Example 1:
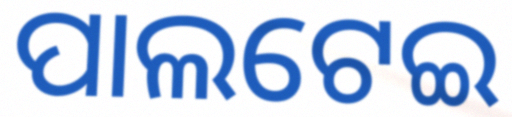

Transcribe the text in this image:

ପାଲଟେଇ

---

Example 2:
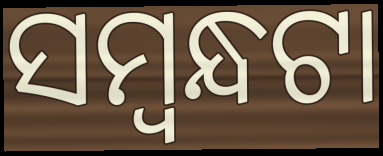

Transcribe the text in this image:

ସମ୍ବନ୍ଧଟା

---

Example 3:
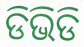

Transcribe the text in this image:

ଡିଭିଡି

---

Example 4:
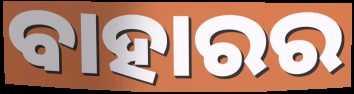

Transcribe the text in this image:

ବାହାରର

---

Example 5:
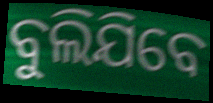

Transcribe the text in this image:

ବୁଲିଯିବେ